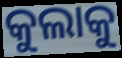
କୁଲାକୁ